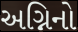
અગ્નિનો